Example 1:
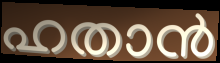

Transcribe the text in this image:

ഹതാൻ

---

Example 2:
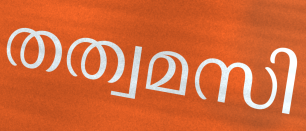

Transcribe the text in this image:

തത്വമസി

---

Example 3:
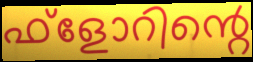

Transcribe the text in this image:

ഫ്ളോറിന്റെ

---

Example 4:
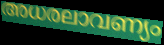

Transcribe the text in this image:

അധരലാവണ്യം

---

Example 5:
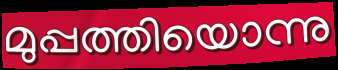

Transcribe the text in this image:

മുപ്പത്തിയൊന്നു